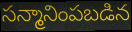
సన్మానింపబడిన